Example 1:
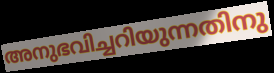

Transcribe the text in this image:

അനുഭവിച്ചറിയുന്നതിനു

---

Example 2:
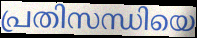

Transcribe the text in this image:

പ്രതിസന്ധിയെ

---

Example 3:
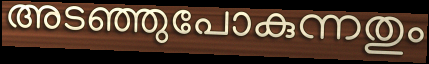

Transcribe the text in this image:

അടഞ്ഞുപോകുന്നതും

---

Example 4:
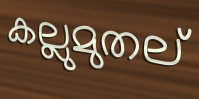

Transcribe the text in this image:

കല്ലുമുതല്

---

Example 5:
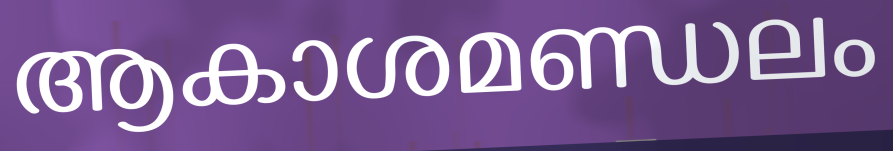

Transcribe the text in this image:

ആകാശമണ്ഡലം